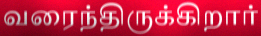
வரைந்திருக்கிறார்